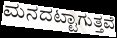
ಮನದಟ್ಟಾಗುತ್ತವೆ